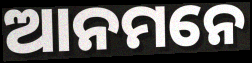
ଆନମନେ